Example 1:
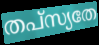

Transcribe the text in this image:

തപ്സ്യതേ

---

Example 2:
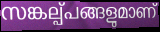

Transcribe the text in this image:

സങ്കല്പ്പങ്ങളുമാണ്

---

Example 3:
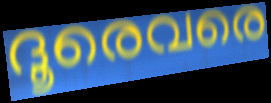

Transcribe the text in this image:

ദൂരെവരെ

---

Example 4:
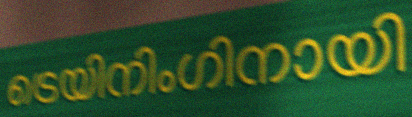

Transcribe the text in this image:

ട്രെയിനിംഗിനായി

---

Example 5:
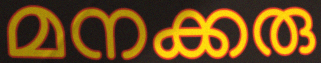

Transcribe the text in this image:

മനക്കരു